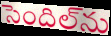
సెందిల్‌ను